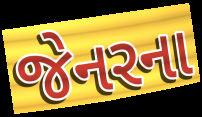
જેનરના